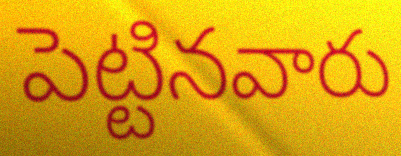
పెట్టినవారు